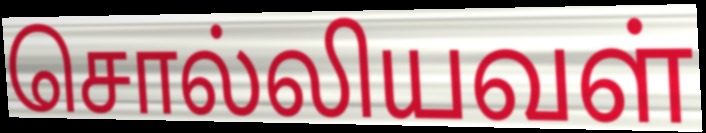
சொல்லியவள்